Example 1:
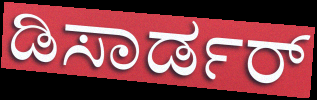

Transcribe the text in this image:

ಡಿಸಾರ್ಡರ್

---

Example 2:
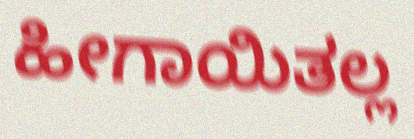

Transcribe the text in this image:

ಹೀಗಾಯಿತಲ್ಲ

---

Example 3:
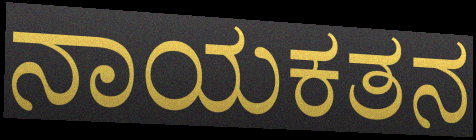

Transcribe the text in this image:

ನಾಯಕತನ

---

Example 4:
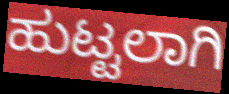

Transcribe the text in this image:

ಹುಟ್ಟಲಾಗಿ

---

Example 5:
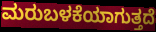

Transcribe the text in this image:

ಮರುಬಳಕೆಯಾಗುತ್ತದೆ